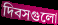
দিবসগুলো